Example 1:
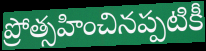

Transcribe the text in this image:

ప్రోత్సహించినప్పటికీ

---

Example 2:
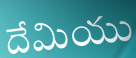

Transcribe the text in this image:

దేమియు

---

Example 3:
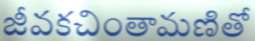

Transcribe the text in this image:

జీవకచింతామణితో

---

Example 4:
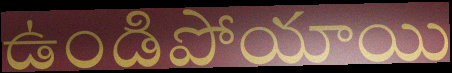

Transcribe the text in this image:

ఉండిపోయాయి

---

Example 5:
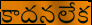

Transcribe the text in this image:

కాదనలేక